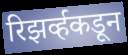
रिझर्व्हकडून